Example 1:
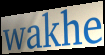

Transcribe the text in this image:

wakhe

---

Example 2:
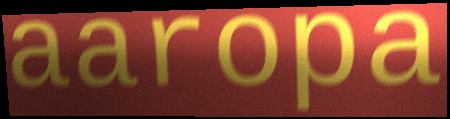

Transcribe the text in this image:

aaropa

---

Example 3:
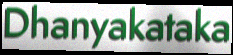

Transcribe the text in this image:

Dhanyakataka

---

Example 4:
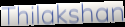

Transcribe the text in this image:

Thilakshan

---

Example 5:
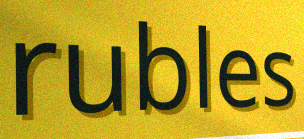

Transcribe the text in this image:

rubles